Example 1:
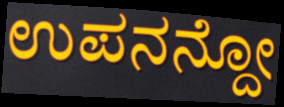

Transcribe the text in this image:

ಉಪನನ್ದೋ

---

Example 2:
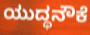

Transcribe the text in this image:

ಯುದ್ಧನೌಕೆ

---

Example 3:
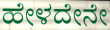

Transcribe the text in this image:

ಹೇಳದೇನೇ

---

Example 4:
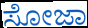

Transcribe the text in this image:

ಸೋಜಾ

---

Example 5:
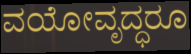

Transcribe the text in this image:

ವಯೋವೃದ್ಧರೂ